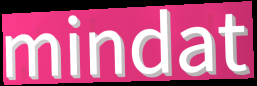
mindat